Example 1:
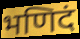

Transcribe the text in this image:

भणिदं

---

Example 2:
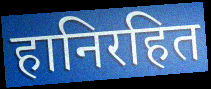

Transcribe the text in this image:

हानिरहित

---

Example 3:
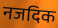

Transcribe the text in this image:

नजदिक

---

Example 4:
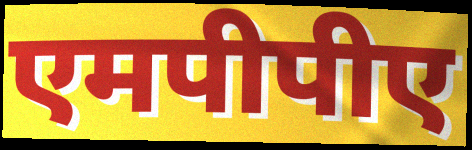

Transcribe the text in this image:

एमपीपीए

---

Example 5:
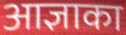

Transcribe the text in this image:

आज्ञाका